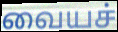
வையச்